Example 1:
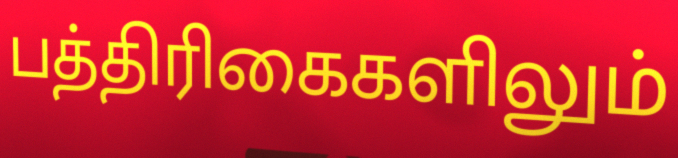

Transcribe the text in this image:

பத்திரிகைகளிலும்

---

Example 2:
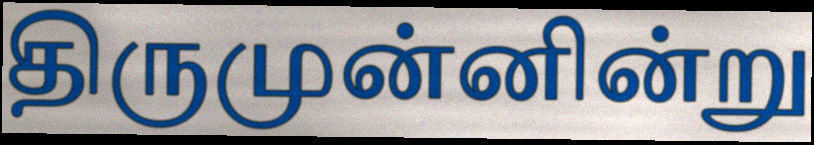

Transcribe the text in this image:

திருமுன்னின்று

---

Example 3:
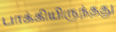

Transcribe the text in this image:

பாக்கியிருந்தது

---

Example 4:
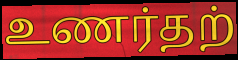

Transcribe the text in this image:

உணர்தற்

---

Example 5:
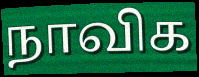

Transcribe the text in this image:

நாவிக